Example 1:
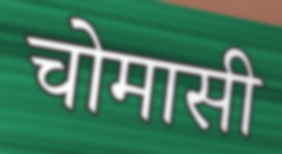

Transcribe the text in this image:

चोमासी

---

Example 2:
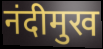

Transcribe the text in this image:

नंदीमुख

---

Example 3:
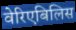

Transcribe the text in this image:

वेरिएबिलिस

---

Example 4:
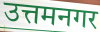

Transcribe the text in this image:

उत्तमनगर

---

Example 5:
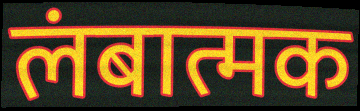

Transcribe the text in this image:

लंबात्मक